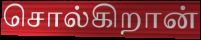
சொல்கிறான்